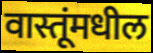
वास्तूंमधील